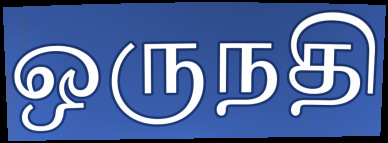
ஒருநதி